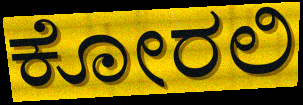
ಕೋರಲಿ